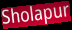
Sholapur